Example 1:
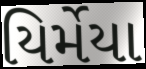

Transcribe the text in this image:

યિર્મેયા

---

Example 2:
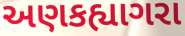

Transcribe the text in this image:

અણકહ્યાગરા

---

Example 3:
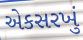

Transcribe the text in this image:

એકસરખું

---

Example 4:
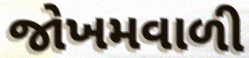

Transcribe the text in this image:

જોખમવાળી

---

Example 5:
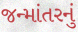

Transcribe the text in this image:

જન્માંતરનું